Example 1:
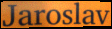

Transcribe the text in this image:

Jaroslav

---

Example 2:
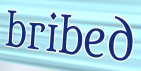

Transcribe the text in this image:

bribed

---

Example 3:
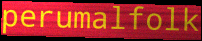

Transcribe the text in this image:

perumalfolk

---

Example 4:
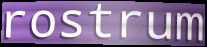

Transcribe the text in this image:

rostrum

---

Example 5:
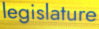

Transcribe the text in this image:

legislature